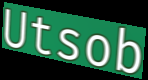
Utsob